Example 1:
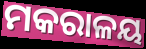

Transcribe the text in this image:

ମକରାଳୟ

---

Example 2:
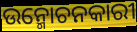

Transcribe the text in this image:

ଉନ୍ମୋଚନକାରୀ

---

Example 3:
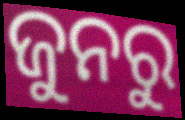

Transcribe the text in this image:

ଜୁନରୁ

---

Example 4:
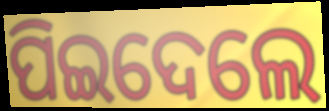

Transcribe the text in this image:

ପିଇଦେଲେ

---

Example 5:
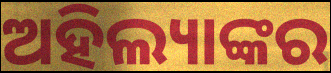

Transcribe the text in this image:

ଅହିଲ୍ୟାଙ୍କର